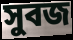
সুবজ